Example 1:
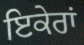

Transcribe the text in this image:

ਇਕੇਰਾਂ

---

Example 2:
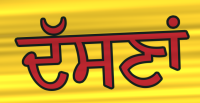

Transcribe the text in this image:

ਦੱਸਣਾਂ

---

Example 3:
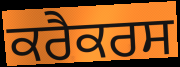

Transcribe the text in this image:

ਕਰੈਕਰਸ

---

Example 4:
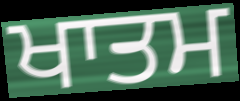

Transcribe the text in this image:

ਖਾਤਮ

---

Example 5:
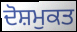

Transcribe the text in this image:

ਦੋਸ਼ਮੁਕਤ